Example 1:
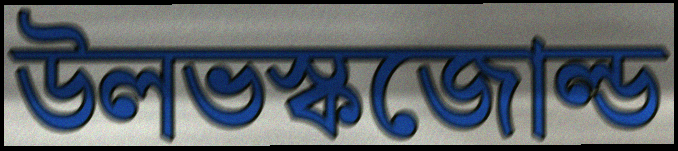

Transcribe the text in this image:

উলভস্কজোল্ড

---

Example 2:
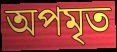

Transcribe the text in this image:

অপমৃত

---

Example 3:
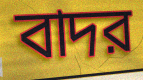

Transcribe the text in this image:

বাদর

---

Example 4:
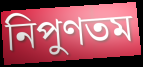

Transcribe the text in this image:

নিপুণতম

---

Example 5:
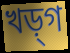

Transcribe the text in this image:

খড়্‌গ